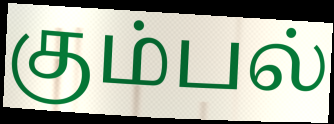
கும்பல்